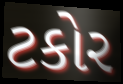
ટકોર